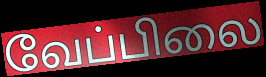
வேப்பிலை